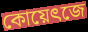
কোয়েৎজে